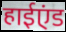
हाईएंड